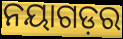
ନୟାଗଡ଼ର